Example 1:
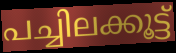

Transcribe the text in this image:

പച്ചിലക്കൂട്ട്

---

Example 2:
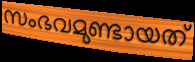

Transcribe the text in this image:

സംഭവമുണ്ടായത്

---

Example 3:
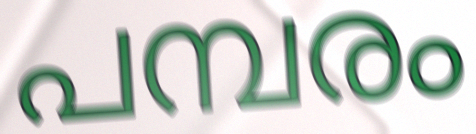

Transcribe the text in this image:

പമ്പരം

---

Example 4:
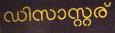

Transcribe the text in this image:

ഡിസാസ്റ്റര്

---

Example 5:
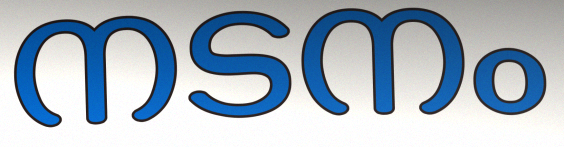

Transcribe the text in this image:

നടനം